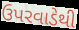
ઉપરવાડેથી